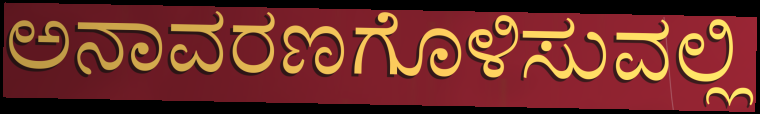
ಅನಾವರಣಗೊಳಿಸುವಲ್ಲಿ